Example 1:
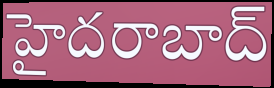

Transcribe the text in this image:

హైదరాబాద్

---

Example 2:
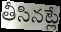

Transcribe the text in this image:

తీసినట్లే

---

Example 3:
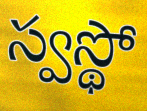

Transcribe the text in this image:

స్వస్థో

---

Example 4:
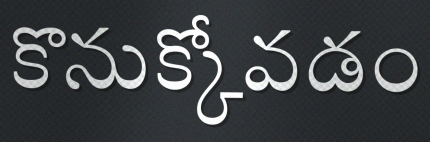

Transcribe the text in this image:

కొనుక్కోవడం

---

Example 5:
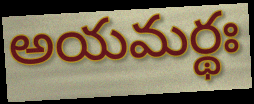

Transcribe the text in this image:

అయమర్థః